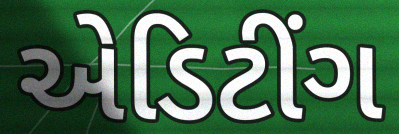
એડિટીંગ